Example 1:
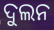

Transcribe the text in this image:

ଦୁଲନ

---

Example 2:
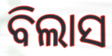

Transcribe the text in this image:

ବିଲାସ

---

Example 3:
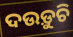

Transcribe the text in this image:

ଦଉଡ଼ୁଚି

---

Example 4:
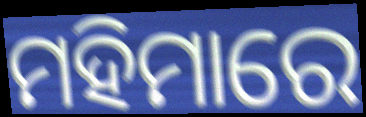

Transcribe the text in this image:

ମହିମାରେ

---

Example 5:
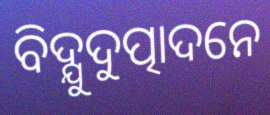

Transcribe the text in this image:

ବିଦ୍ଯୁଦୁତ୍ପାଦନେ